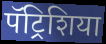
पॅट्रिशिया